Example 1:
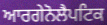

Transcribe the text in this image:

ਆਰਗੇਨੋਲੈਪਟਿਕ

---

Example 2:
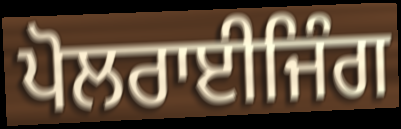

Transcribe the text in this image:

ਪੋਲਰਾਈਜਿੰਗ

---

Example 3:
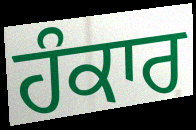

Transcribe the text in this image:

ਹੰਕਾਰ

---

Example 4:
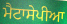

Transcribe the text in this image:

ਮੈਟਾਸੇਪੀਆ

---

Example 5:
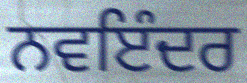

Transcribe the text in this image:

ਨਵਇੰਦਰ